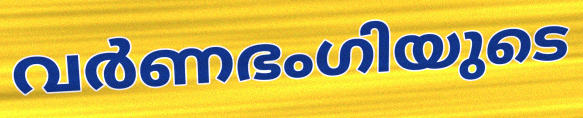
വർണഭംഗിയുടെ